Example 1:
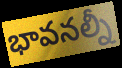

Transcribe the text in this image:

భావనల్నీ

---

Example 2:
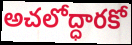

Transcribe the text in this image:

అచలోద్ధారకో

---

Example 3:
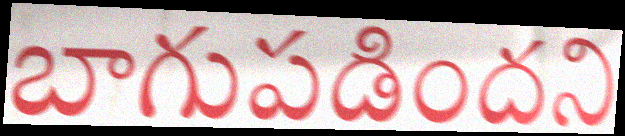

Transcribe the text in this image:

బాగుపడిందని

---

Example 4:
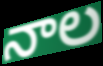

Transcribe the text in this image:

నాల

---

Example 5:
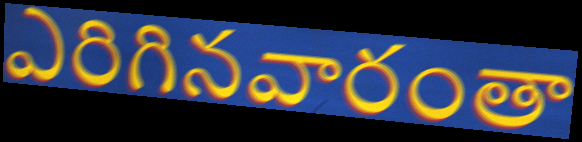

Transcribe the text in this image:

ఎరిగినవారంతా